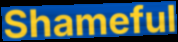
Shameful